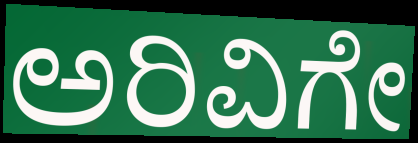
ಅರಿವಿಗೇ